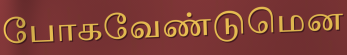
போகவேண்டுமென